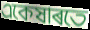
একেষাৰতে